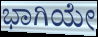
ಭಾಗಿಯೇ